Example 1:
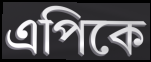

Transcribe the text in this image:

এপিকে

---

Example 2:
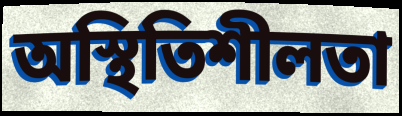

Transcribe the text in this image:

অস্থিতিশীলতা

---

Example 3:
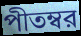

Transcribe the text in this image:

পীতম্বর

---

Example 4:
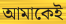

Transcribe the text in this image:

আমাকেই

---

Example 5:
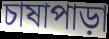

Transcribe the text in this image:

চাষাপাড়া